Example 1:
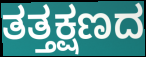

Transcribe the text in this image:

ತತ್ತಕ್ಷಣದ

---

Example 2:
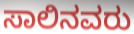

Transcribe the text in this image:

ಸಾಲಿನವರು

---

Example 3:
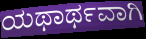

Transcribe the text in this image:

ಯಥಾರ್ಥವಾಗಿ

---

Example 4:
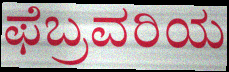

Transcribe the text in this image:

ಫೆಬ್ರವರಿಯ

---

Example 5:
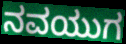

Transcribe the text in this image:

ನವಯುಗ